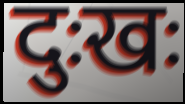
दुःखः